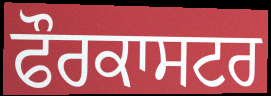
ਫੌਰਕਾਸਟਰ